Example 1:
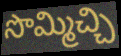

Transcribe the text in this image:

సొమ్మిచ్చి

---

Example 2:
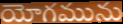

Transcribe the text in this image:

యోగమును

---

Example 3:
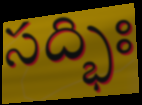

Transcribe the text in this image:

సద్భిః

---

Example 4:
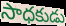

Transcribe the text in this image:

సాధకుడు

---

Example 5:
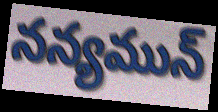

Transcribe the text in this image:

నన్యమున్